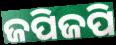
ଜପିଜପି